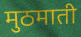
मुठमाती